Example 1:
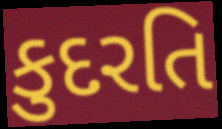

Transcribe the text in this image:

કુદરતિ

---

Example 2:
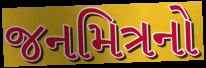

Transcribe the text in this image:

જનમિત્રનો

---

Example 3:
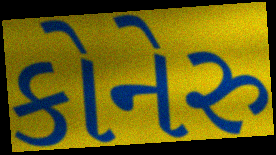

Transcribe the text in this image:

કોનેરુ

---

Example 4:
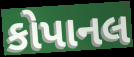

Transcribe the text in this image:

કોપાનલ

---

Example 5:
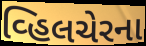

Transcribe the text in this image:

વ્હિલચેરના